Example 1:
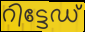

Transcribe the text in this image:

റിട്ടേഡ്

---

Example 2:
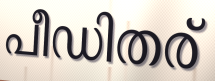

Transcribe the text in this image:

പീഡിതര്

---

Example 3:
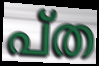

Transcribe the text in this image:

പ്ത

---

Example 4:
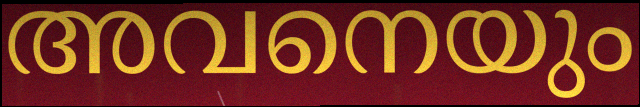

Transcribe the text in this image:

അവനെയും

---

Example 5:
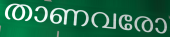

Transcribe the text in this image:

താണവരോ